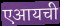
एआयची